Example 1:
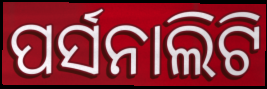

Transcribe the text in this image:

ପର୍ସନାଲିଟି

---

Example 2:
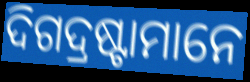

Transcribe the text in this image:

ଦିଗଦ୍ରଷ୍ଟାମାନେ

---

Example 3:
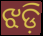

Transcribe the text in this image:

ଝଡ଼ି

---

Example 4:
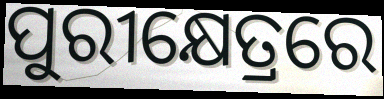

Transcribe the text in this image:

ପୁରୀକ୍ଷେତ୍ରରେ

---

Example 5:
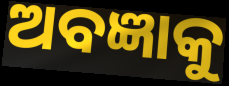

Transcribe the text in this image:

ଅବଜ୍ଞାକୁ